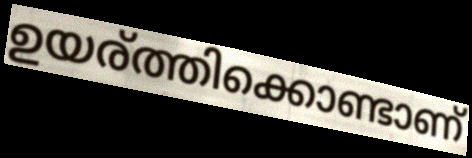
ഉയര്ത്തിക്കൊണ്ടാണ്